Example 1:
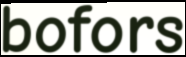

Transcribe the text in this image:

bofors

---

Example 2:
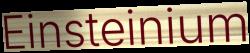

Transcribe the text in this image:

Einsteinium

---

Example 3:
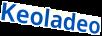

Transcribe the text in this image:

Keoladeo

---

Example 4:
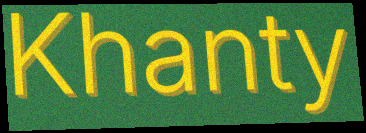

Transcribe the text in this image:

Khanty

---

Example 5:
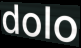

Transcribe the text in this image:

dolo